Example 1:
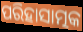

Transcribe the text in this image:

ପରିହାସାତ୍ମକ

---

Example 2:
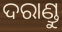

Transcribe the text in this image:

ଦରାଣ୍ଡୁ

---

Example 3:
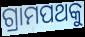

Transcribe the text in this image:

ଗ୍ରାମପଥକୁ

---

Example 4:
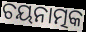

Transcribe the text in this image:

ଚୟନାତ୍ମକ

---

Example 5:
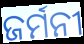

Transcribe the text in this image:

ଜର୍ମନୀ